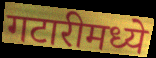
गटारीमध्ये